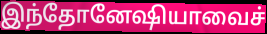
இந்தோனேஷியாவைச்